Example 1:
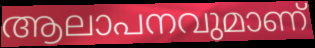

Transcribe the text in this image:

ആലാപനവുമാണ്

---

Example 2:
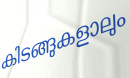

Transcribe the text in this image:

കിടങ്ങുകളാലും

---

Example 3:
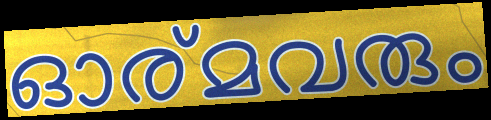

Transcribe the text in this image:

ഓര്മവരും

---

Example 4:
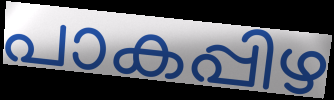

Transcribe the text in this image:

പാകപ്പിഴ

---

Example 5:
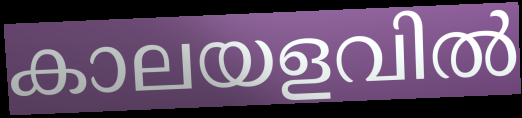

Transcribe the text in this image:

കാലയളവിൽ